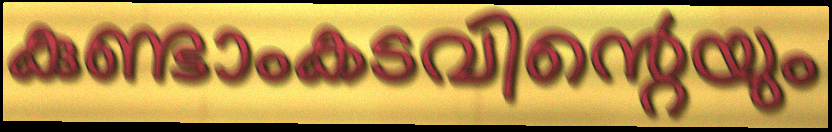
കുണ്ടാംകടവിന്റെയും